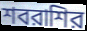
শবরাশির